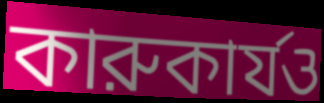
কারুকার্যও